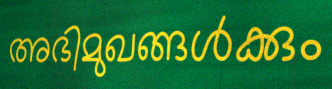
അഭിമുഖങ്ങൾക്കും